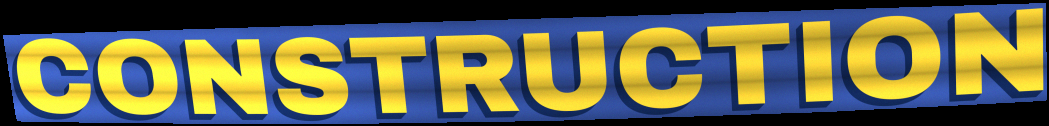
CONSTRUCTION